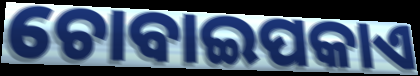
ଚୋବାଇପକାଏ